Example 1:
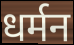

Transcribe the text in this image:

धर्मन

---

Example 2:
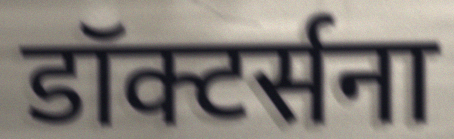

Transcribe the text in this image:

डॉक्टर्सना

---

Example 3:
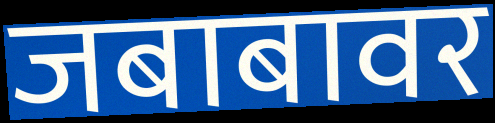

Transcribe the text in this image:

जबाबावर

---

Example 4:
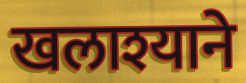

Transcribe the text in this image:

खलाश्याने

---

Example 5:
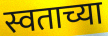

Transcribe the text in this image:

स्वताच्या